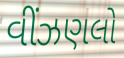
વીંઝણલો